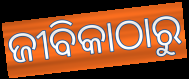
ଜୀବିକାଠାରୁ